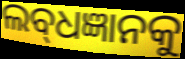
ଲବ୍‌ଧଜ୍ଞାନକୁ